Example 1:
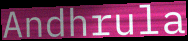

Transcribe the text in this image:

Andhrula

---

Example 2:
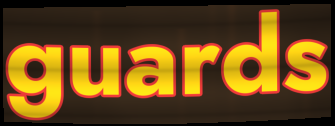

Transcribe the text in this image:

guards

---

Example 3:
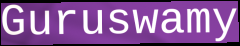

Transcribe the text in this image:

Guruswamy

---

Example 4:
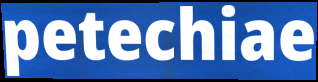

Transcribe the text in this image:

petechiae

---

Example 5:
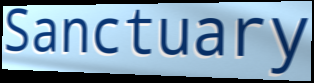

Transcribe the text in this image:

Sanctuary